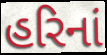
હરિનાં